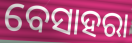
ବେସାହରା